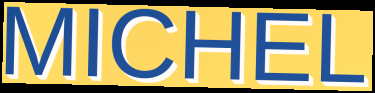
MICHEL